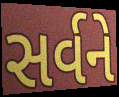
સર્વને